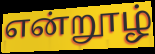
என்றூழ்